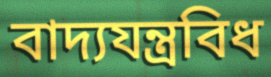
বাদ্যযন্ত্ৰবিধ